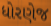
ધોરણેજ